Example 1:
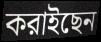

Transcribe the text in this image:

করাইছেন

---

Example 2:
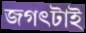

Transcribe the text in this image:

জগৎটাই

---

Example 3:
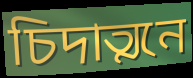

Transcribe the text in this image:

চিদাত্মনে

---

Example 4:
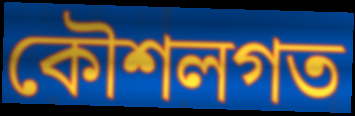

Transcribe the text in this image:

কৌশলগত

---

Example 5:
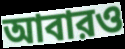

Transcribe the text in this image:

আবারও